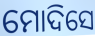
ମୋଦିସେ